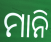
ମାନି